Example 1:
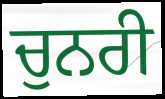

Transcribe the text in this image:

ਚੁਨਰੀ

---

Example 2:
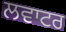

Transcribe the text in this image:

ਲਵਾਟਰ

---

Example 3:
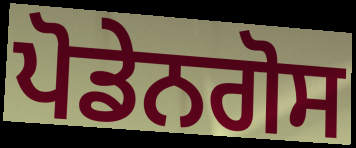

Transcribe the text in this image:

ਪੋਡੇਨਗੋਸ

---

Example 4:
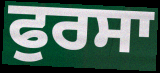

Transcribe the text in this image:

ਫੁਰਸਾ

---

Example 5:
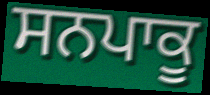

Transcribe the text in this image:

ਸਨਪਾਕੂ